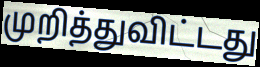
முறித்துவிட்டது